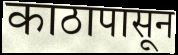
काठापासून